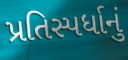
પ્રતિસ્પર્ધાનું